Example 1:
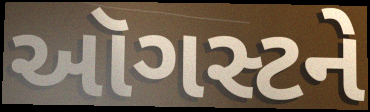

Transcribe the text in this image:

ઑગસ્ટને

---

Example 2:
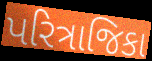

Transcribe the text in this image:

પરિત્રાજિકા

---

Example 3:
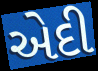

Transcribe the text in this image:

એદી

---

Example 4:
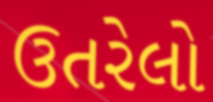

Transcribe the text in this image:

ઉતરેલો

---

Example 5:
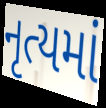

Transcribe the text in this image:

નૃત્યમાં